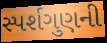
સ્પર્શગુણની